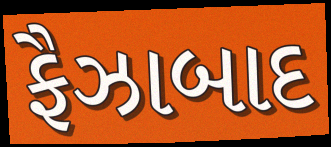
ફૈઝાબાદ